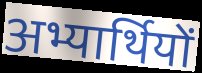
अभ्‍यार्थियों